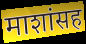
माशांसह